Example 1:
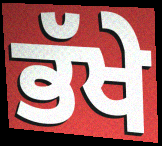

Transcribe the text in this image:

ਭੱਖੇ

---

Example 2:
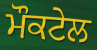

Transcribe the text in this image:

ਮੌਕਟੇਲ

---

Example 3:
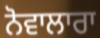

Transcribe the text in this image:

ਨੋਵਾਲਾਰਾ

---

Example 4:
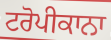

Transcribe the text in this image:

ਟਰੋਪੀਕਾਨਾ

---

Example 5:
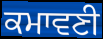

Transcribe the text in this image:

ਕਮਾਵਣੀ